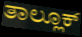
ತಾಲ್ಲೂಕ್